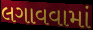
લગાવવામાં